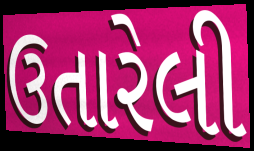
ઉતારેલી